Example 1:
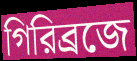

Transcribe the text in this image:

গিরিব্রজে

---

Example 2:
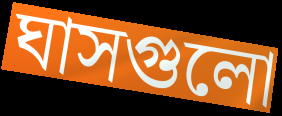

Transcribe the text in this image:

ঘাসগুলো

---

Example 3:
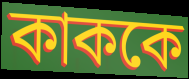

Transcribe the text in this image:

কাককে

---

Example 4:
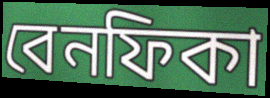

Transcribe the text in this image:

বেনফিকা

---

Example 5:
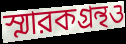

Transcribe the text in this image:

স্মারকগ্রন্থও